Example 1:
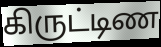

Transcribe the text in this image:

கிருட்டிண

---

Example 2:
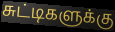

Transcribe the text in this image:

சுட்டிகளுக்கு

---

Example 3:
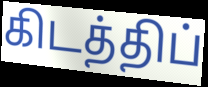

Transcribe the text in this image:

கிடத்திப்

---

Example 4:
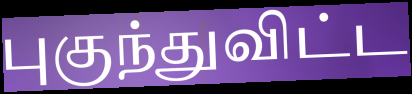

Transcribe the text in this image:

புகுந்துவிட்ட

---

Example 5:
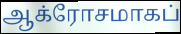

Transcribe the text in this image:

ஆக்ரோசமாகப்